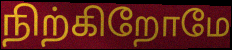
நிற்கிறோமே